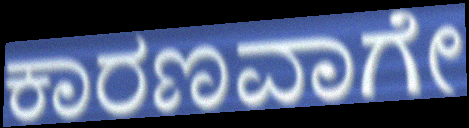
ಕಾರಣವಾಗೇ